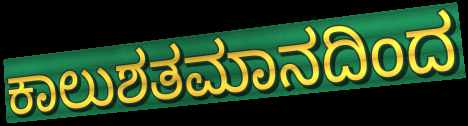
ಕಾಲುಶತಮಾನದಿಂದ